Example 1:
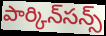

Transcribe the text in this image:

పార్కిన్‌సన్స్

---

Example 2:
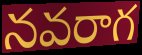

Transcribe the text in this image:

నవరాగ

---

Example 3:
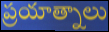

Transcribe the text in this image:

ప్రయాత్నాలు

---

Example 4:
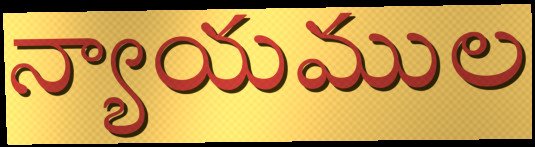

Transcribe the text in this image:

న్యాయముల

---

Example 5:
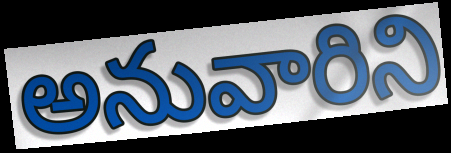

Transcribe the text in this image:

అనువారిని